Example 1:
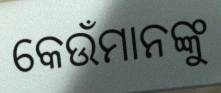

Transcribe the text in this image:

କେଉଁମାନଙ୍କୁ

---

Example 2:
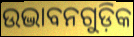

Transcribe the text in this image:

ଉଦ୍ଭାବନଗୁଡ଼ିକ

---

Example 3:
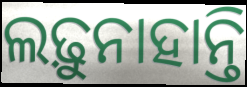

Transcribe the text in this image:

ଲଢ଼ୁନାହାନ୍ତି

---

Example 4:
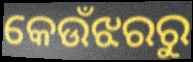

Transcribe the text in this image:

କେଉଁଝରରୁ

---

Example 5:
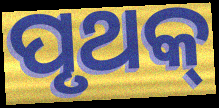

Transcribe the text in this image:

ପୃଥକ୍